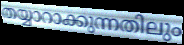
തയ്യാറാക്കുന്നതിലും